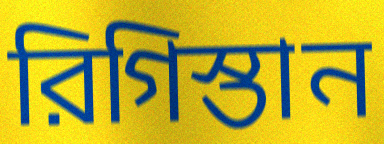
রিগিস্তান